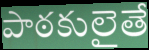
పాఠకులైతే